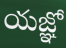
యజ్ఞో